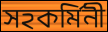
সহকর্মিনী